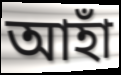
আহাঁ